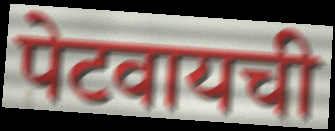
पेटवायची